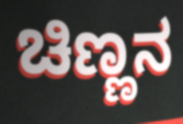
ಚಿಣ್ಣನ